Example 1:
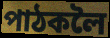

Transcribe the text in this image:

পাঠকলৈ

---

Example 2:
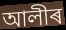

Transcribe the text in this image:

আলীৰ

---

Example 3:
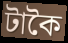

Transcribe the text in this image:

টাকৈ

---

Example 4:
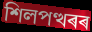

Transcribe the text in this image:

শিলপত্থৰৰ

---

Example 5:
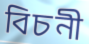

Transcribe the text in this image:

বিচনী